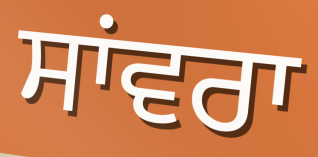
ਸਾਂਵਰਾ